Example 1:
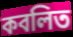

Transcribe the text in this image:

কবলিত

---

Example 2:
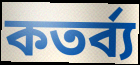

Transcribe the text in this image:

কতর্ব্য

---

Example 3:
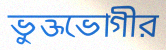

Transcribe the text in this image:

ভুক্তভোগীর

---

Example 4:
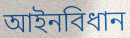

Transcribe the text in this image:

আইনবিধান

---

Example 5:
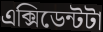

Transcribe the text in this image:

এক্সিডেন্টটা